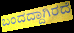
ಬಂದದ್ದಾಗಿರದೆ